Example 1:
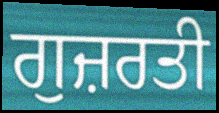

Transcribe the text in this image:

ਗੁਜ਼ਰਤੀ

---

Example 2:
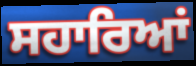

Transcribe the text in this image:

ਸਹਾਰਿਆਂ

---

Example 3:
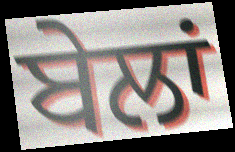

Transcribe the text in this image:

ਬੇਲਾਂ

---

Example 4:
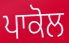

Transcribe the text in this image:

ਪਾਕੋਲ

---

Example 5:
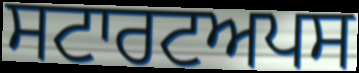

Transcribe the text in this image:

ਸਟਾਰਟਅਪਸ